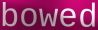
bowed